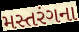
મસ્તરંગના